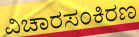
ವಿಚಾರಸಂಕಿರಣ